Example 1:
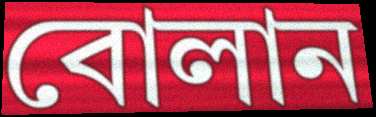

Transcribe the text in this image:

বোলান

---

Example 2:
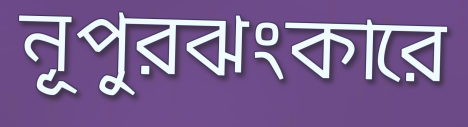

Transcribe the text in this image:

নূপুরঝংকারে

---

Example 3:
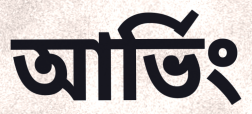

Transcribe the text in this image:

আর্ভিং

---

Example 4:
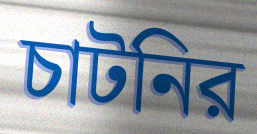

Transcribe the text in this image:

চাটনির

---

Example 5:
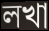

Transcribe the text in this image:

লখা